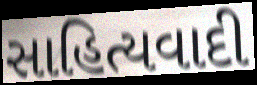
સાહિત્યવાદી